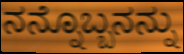
ನನ್ನೊಬ್ಬನನ್ನು